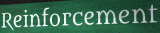
Reinforcement